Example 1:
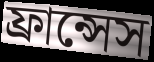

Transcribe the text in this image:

ফ্রান্সেস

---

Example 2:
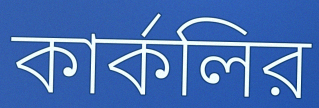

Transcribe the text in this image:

কার্কলির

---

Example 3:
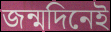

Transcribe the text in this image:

জন্মদিনেই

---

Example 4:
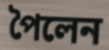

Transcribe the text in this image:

পৈলেন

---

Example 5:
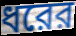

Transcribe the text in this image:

ধরের